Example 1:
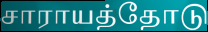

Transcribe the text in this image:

சாராயத்தோடு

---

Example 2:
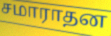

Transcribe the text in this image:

சமாராதன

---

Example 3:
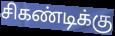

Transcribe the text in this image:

சிகண்டிக்கு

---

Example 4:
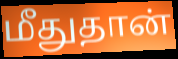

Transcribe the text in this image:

மீதுதான்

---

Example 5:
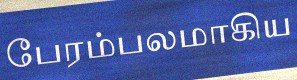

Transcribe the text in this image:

பேரம்பலமாகிய